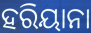
ହରିୟାନା